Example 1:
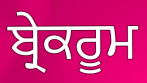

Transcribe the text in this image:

ਬ੍ਰੇਕਰੂਮ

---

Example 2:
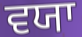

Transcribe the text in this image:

ਵਯਾ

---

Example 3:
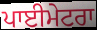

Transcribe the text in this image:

ਪਾਈਮੇਟਰਾ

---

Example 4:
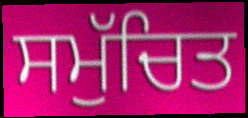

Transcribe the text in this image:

ਸਮੁੱਚਿਤ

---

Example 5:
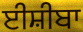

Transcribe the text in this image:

ਈਸ਼ੀਬਾ